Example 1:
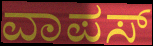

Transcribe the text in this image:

ವಾಪಸ್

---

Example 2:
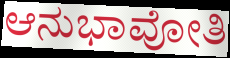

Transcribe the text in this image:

ಆನುಭಾವೋತಿ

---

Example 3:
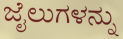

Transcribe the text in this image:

ಜೈಲುಗಳನ್ನು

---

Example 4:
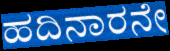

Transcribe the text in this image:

ಹದಿನಾರನೇ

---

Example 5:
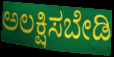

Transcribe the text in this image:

ಅಲಕ್ಷಿಸಬೇಡಿ